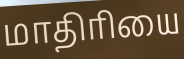
மாதிரியை